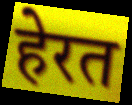
हेरत